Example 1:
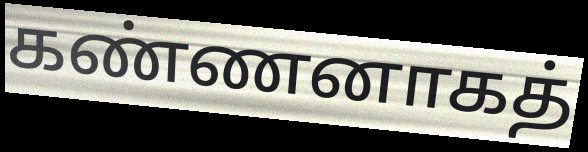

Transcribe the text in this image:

கண்ணனாகத்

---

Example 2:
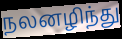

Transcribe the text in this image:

நலனழிந்து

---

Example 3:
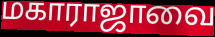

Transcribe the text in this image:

மகாராஜாவை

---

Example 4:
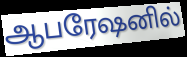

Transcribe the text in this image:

ஆபரேஷனில்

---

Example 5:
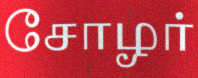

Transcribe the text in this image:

சோழர்